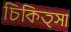
চিকিত্সা